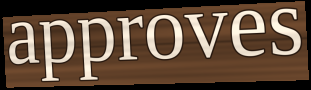
approves